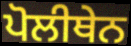
ਪੋਲੀਥੇਨ